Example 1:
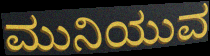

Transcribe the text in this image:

ಮುನಿಯುವ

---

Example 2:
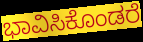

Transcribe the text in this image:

ಭಾವಿಸಿಕೊಂಡರೆ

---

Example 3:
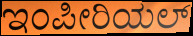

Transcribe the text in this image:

ಇಂಪೀರಿಯಲ್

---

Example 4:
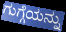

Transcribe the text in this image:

ಗುಗ್ಗೆಯನ್ನು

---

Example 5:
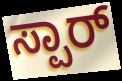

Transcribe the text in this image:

ಸ್ಪಾರ್